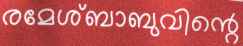
രമേശ്ബാബുവിന്റെ